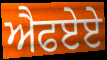
ਐਫਏਏ